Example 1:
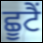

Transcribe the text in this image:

ਛੂਟੈਂ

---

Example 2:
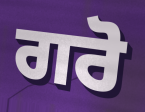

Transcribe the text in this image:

ਗਰੋ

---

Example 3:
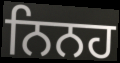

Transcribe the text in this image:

ਨਿਨਹ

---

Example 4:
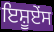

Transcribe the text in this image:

ਇਸ਼ੂਏਂਸ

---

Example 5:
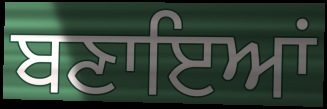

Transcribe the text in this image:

ਬਣਾਇਆਂ